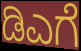
ಡಿಎಗೆ